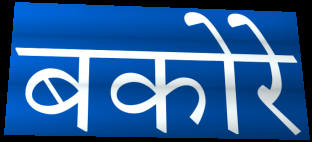
बकोरे